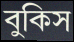
বুকিস